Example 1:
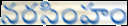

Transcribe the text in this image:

నరసింహం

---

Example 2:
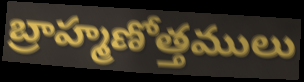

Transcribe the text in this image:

బ్రాహ్మణోత్తములు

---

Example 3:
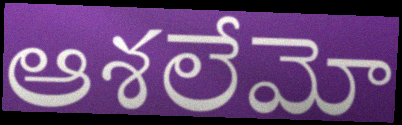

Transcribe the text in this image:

ఆశలేమో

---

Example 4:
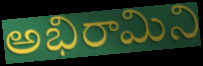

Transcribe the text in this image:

అభిరామిని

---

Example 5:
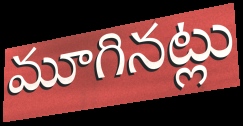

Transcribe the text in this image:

మూగినట్లు